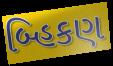
બ્હિકણ